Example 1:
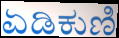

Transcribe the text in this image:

ಏಡಿಕುಣಿ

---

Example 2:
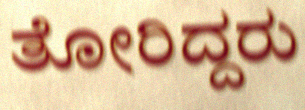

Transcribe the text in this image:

ತೋರಿದ್ದರು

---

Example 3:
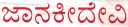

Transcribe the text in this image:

ಜಾನಕೀದೇವಿ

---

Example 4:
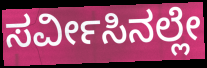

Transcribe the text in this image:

ಸರ್ವೀಸಿನಲ್ಲೇ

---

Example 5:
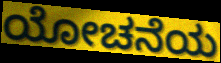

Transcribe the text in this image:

ಯೋಚನೆಯ